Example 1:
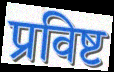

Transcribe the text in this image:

प्रविष्ट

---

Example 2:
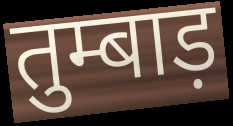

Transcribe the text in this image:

तुम्बाड़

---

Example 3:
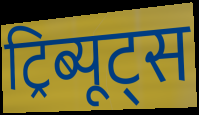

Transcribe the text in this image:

ट्रिब्यूट्स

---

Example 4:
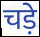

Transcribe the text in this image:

चड़े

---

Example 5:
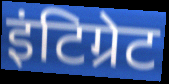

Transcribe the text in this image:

इंटिग्रेट